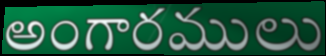
అంగారములు